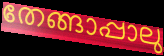
തേങ്ങാപ്പാലു